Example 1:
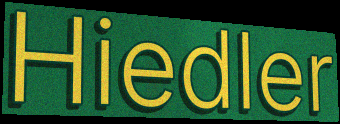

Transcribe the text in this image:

Hiedler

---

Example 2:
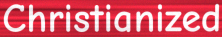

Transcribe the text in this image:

Christianized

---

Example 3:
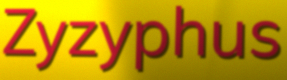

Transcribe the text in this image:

Zyzyphus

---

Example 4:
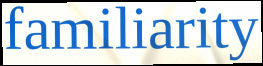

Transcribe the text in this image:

familiarity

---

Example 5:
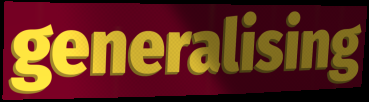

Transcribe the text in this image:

generalising